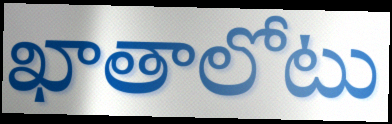
ఖాతాలోటు